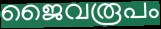
ജൈവരൂപം